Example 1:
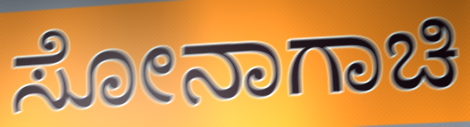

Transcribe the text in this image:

ಸೋನಾಗಾಚಿ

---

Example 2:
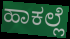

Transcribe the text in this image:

ಹಾಕಲ್ಲೆ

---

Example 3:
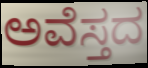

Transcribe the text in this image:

ಅವೆಸ್ತದ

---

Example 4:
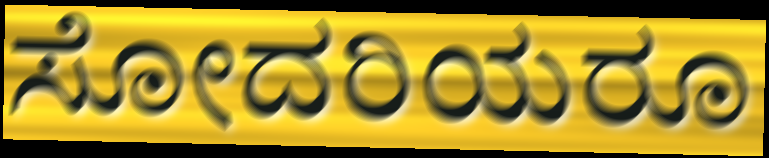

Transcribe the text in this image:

ಸೋದರಿಯರೂ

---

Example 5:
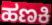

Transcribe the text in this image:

ಹಣಕಿ